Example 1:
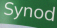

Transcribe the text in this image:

Synod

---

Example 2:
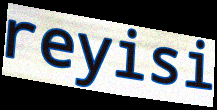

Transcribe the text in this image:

reyisi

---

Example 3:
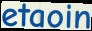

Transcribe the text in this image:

etaoin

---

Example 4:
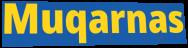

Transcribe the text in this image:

Muqarnas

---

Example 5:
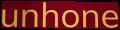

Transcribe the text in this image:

unhone